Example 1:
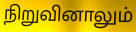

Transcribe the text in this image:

நிறுவினாலும்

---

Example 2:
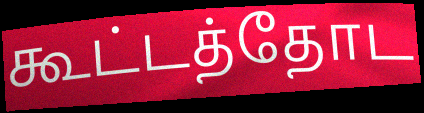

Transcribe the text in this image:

கூட்டத்தோட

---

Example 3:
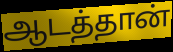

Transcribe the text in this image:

ஆடத்தான்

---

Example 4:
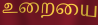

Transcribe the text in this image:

உறையை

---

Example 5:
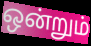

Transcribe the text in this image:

ஒன்றும்